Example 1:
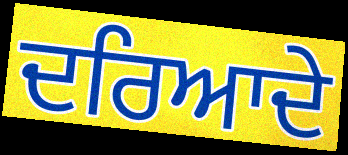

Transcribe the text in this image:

ਦਰਿਆਦੇ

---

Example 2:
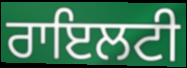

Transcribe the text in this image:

ਰਾਇਲਟੀ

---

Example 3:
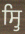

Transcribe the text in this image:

ਸ੍ਤਿ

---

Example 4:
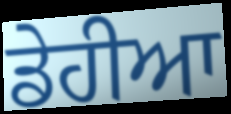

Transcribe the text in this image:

ਡੇਹੀਆ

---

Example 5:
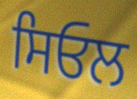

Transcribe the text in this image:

ਸਿਓਲ